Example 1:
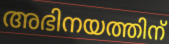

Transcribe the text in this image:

അഭിനയത്തിന്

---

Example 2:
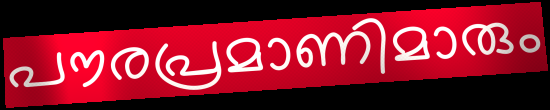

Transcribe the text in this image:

പൗരപ്രമാണിമാരും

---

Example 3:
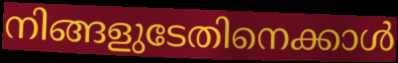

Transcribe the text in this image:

നിങ്ങളുടേതിനെക്കാൾ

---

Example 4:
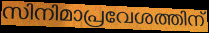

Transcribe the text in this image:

സിനിമാപ്രവേശത്തിന്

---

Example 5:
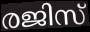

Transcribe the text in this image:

രജിസ്